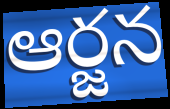
ఆర్జన